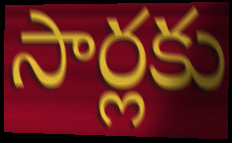
సార్లకు